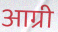
आग्री